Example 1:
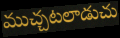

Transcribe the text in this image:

ముచ్చటలాడుచు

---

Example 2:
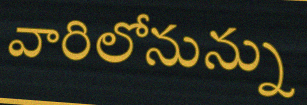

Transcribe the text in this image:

వారిలోనున్ను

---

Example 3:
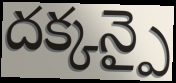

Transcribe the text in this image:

దక్కన్పై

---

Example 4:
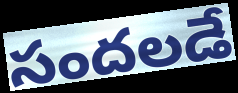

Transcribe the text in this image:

సందలడే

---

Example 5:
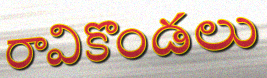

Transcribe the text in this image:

రావికొండలు